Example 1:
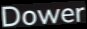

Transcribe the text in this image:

Dower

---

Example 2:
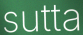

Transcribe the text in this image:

sutta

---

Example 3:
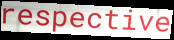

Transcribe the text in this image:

respective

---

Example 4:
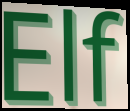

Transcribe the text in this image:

Elf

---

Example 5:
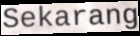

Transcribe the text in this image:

Sekarang